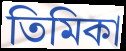
তিমিকা